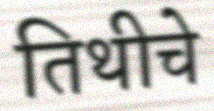
तिथीचे